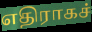
எதிராகச்